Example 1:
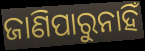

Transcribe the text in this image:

ଜାଣିପାରୁନାହିଁ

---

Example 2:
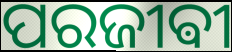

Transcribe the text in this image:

ପରଜୀଵୀ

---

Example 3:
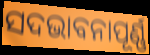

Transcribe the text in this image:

ସଦଭାବନାପୂର୍ଣ୍ଣ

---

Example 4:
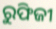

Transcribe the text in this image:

ରୁଫିଜୀ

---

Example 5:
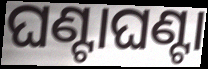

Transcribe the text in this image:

ଘଣ୍ଟାଘଣ୍ଟା